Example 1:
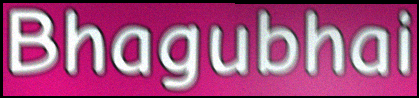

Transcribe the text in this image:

Bhagubhai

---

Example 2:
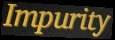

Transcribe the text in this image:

Impurity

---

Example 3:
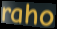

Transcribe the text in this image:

raho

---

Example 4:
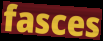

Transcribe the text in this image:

fasces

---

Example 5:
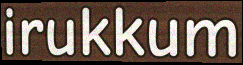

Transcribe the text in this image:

irukkum